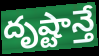
దృష్టాన్తే